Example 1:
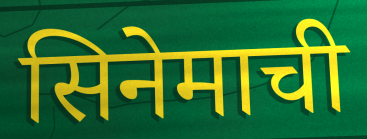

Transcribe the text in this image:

सिनेमाची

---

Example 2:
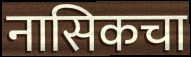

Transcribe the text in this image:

नासिकचा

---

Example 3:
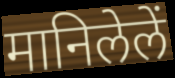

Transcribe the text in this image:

मानिलेलें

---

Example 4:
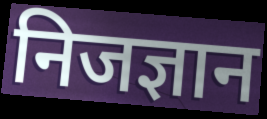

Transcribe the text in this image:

निजज्ञान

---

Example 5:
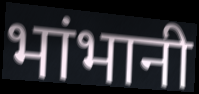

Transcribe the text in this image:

भांभानी